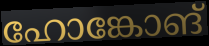
ഹോങ്കോങ്